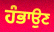
ਹੰਭਾਉਣ